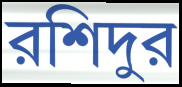
রশিদুর